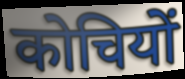
कोचियों